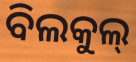
ବିଲକୁଲ୍